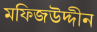
মফিজউদ্দীন